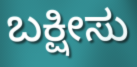
ಬಕ್ಷೀಸು